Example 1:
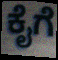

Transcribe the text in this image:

ಕೈಗೆ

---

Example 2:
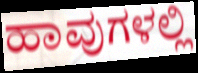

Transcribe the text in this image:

ಹಾವುಗಳಲ್ಲಿ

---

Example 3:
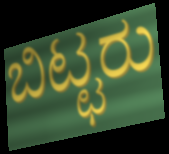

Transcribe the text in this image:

ಬಿಟ್ಟರು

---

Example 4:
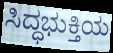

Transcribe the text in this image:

ಸಿದ್ಧಭುಕ್ತಿಯ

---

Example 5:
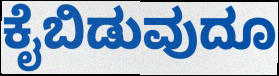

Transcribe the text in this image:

ಕೈಬಿಡುವುದೂ